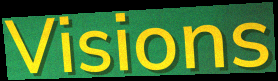
Visions